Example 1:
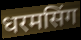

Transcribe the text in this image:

धरमसिंग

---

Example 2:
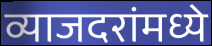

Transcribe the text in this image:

व्याजदरांमध्ये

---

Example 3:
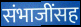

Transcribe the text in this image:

संभाजींसह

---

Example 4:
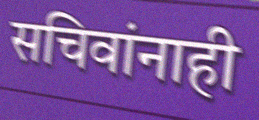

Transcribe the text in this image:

सचिवांनाही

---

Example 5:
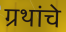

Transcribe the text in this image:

ग्रथांचे